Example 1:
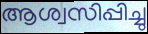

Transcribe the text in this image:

ആശ്വസിപ്പിച്ചു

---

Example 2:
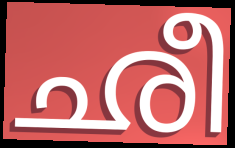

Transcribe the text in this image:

ഛീ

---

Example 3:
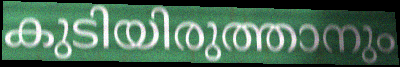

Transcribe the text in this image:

കുടിയിരുത്താനും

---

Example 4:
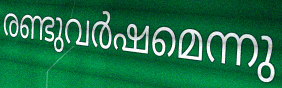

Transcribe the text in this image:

രണ്ടുവർഷമെന്നു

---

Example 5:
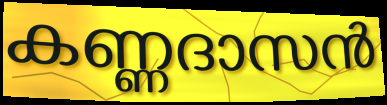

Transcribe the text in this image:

കണ്ണദാസൻ